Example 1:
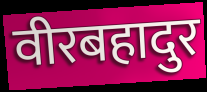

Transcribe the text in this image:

वीरबहादुर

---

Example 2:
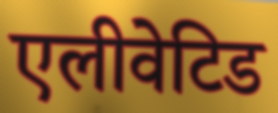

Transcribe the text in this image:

एलीवेटिड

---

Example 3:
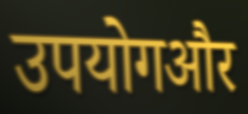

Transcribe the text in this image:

उपयोगऔर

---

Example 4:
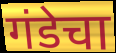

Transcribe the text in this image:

गंडेचा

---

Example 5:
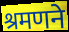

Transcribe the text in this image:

श्रमणने